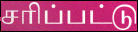
சரிப்பட்டு